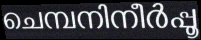
ചെമ്പനിനീർപ്പൂ